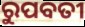
ରୁପବତୀ